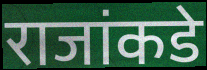
राजांकडे